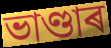
ভাণ্ডাৰ